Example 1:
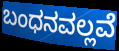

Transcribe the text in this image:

ಬಂಧನವಲ್ಲವೆ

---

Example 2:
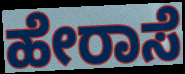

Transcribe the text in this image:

ಹೇರಾಸೆ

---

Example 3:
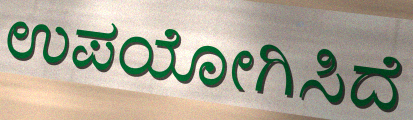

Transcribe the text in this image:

ಉಪಯೋಗಿಸಿದೆ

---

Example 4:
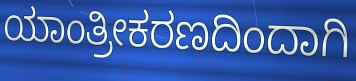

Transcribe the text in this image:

ಯಾಂತ್ರೀಕರಣದಿಂದಾಗಿ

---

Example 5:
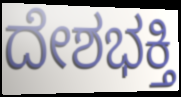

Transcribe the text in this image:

ದೇಶಭಕ್ತಿ